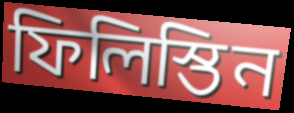
ফিলিস্তিন